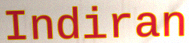
Indiran